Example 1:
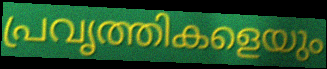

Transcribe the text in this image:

പ്രവൃത്തികളെയും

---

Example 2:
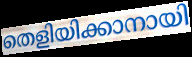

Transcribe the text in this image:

തെളിയിക്കാനായി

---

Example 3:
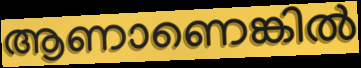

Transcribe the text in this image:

ആണാണെങ്കിൽ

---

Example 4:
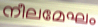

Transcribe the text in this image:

നീലമേഘം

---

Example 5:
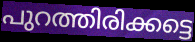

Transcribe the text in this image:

പുറത്തിരിക്കട്ടെ